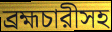
ব্রহ্মচারীসহ